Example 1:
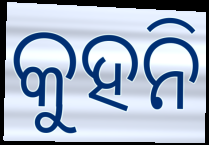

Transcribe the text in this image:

କୁହନି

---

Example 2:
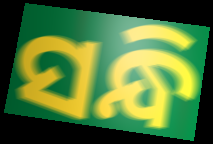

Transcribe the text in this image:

ସନ୍ଧି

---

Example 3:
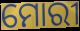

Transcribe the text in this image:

ମୋରୀ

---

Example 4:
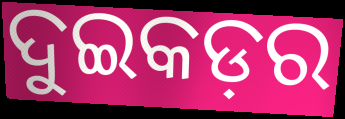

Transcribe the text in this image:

ଦୁଇକଡ଼ର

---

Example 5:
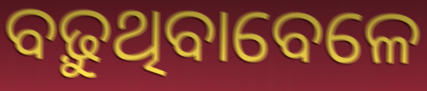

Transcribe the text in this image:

ବଢ଼ୁଥିବାବେଳେ